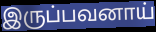
இருப்பவனாய்